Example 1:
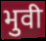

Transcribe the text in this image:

भुवी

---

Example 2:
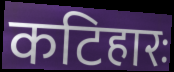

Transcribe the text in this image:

कटिहारः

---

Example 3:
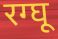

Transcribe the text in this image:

रग्घू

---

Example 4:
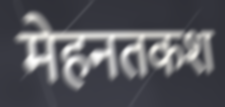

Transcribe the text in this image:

मेहनतकश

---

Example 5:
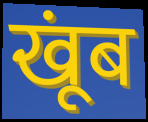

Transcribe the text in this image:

खूंब